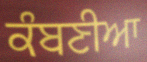
ਕੰਬਣੀਆ